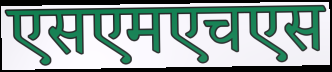
एसएमएचएस